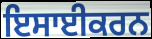
ਇਸਾਈਕਰਨ